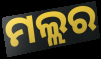
ମଲ୍ଲର